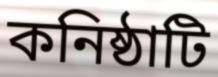
কনিষ্ঠাটি